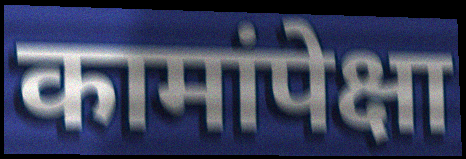
कामांपेक्षा